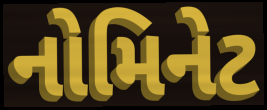
નોમિનેટ